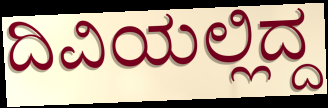
ದಿವಿಯಲ್ಲಿದ್ದ